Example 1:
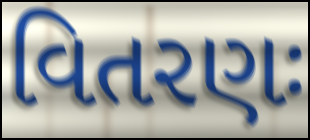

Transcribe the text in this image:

વિતરણઃ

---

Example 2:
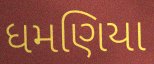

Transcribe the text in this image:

ધમણિયા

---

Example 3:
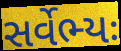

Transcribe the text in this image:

સર્વેભ્યઃ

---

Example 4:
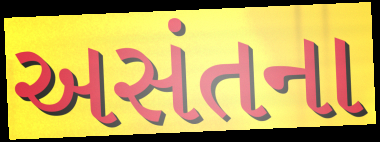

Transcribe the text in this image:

અસંતના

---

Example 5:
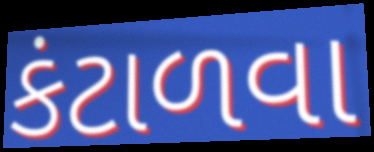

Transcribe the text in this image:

કંટાળવા